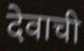
देवाची